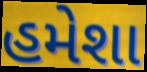
હમેશા